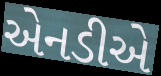
એનડીએ